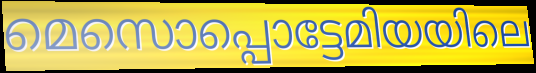
മെസൊപ്പൊട്ടേമിയയിലെ